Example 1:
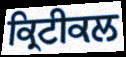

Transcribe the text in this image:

ਕ੍ਰਿਟੀਕਲ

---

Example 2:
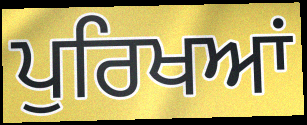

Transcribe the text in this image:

ਪੁਰਿਖਆਂ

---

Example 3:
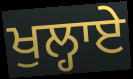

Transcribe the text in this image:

ਖੁਲ੍ਹਾਏ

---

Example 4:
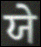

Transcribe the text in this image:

ਯੇ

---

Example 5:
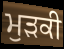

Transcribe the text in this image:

ਮੁੜਕੀ